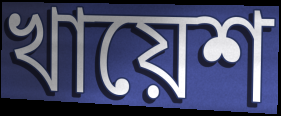
খায়েশ